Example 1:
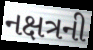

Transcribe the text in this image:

નક્ષત્રની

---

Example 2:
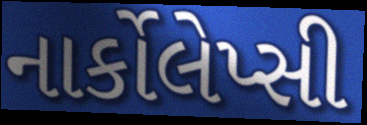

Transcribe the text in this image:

નાર્કોલેપ્સી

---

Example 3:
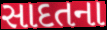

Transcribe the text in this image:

સાદતના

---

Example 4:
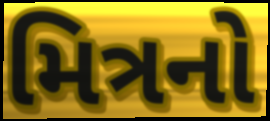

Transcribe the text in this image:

મિત્રનો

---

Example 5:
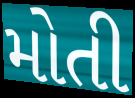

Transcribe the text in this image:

મોતી